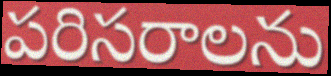
పరిసరాలను